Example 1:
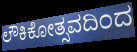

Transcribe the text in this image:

ಲೌಕಿಕೋತ್ಸವದಿಂದ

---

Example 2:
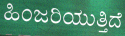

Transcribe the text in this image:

ಹಿಂಜರಿಯುತ್ತಿದೆ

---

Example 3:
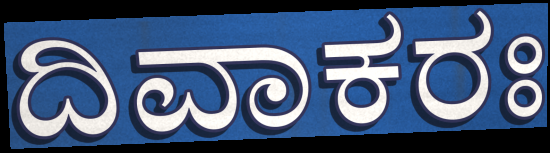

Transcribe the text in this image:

ದಿವಾಕರಃ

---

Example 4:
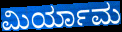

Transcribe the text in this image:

ಮಿರ್ಯಾಮ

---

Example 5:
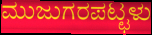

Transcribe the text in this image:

ಮುಜುಗರಪಟ್ಟಳು